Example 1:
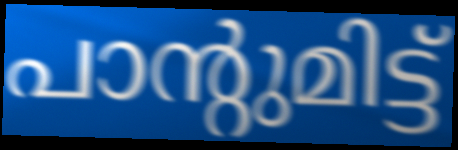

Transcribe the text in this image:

പാന്റുമിട്ട്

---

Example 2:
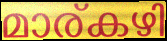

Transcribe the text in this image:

മാര്കഴി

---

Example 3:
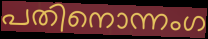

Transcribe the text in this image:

പതിനൊന്നംഗ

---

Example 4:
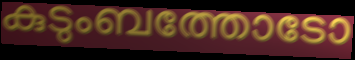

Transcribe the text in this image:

കുടുംബത്തോടോ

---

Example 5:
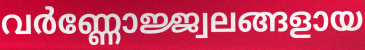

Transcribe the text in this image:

വർണ്ണോജ്ജ്വലങ്ങളായ